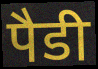
पैडी